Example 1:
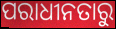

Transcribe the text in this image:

ପରାଧୀନତାରୁ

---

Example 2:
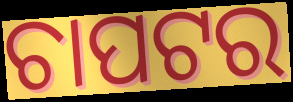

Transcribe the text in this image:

ଚାପଟର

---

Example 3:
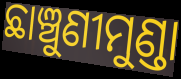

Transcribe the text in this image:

ଛାଞ୍ଚୁଣୀମୁଣ୍ଡା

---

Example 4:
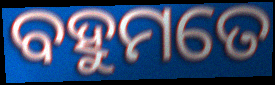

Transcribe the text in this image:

ବହୁମତେ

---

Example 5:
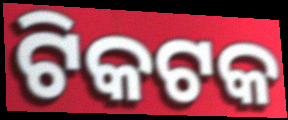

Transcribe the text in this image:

ଟିକଟକ